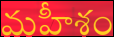
మహీశం